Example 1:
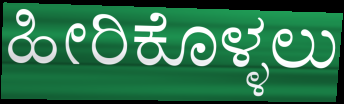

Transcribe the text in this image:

ಹೀರಿಕೊಳ್ಳಲು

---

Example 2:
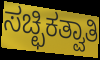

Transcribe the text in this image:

ಸಚ್ಛಿಕತ್ವಾತಿ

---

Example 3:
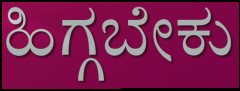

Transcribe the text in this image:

ಹಿಗ್ಗಬೇಕು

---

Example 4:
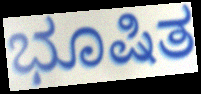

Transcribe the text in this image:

ಭೂಷಿತ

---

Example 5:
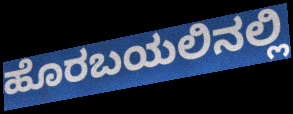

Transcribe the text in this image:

ಹೊರಬಯಲಿನಲ್ಲಿ